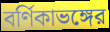
বর্ণিকাভঙ্গের